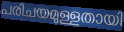
പരിചയമുള്ളതായി